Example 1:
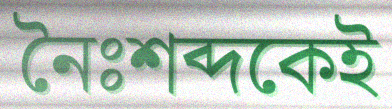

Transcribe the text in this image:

নৈঃশব্দকেই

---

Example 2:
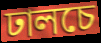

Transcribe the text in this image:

ঢালচে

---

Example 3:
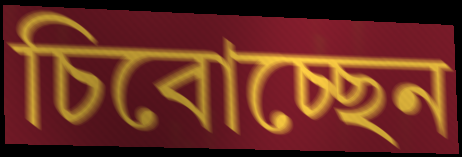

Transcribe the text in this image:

চিবোচ্ছেন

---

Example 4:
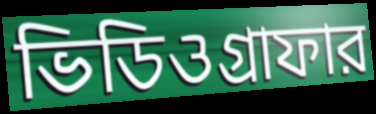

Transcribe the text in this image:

ভিডিওগ্রাফার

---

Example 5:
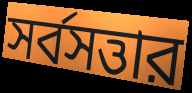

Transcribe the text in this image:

সর্বসত্তার